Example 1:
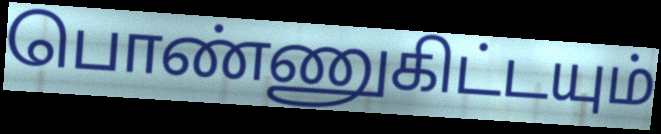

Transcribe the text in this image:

பொண்ணுகிட்டயும்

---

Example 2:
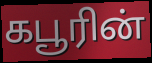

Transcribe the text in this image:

கபூரின்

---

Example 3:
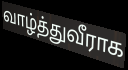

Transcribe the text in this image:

வாழ்த்துவீராக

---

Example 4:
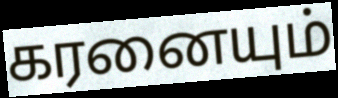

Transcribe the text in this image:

கரனையும்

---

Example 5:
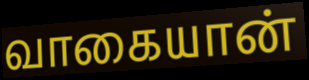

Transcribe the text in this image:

வாகையான்